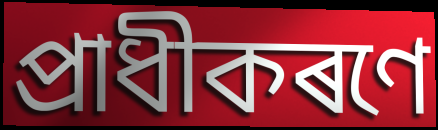
প্ৰাধীকৰণে